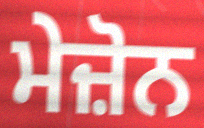
ਮੇਜ਼ੋਨ